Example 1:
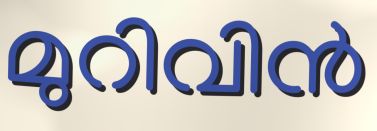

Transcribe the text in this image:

മുറിവിൻ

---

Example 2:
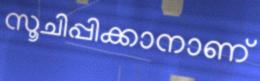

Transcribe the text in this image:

സൂചിപ്പിക്കാനാണ്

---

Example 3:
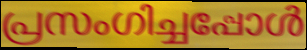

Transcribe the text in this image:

പ്രസംഗിച്ചപ്പോൾ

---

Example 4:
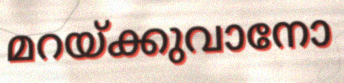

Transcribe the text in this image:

മറയ്ക്കുവാനോ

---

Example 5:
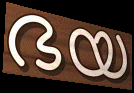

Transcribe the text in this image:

ഭയ